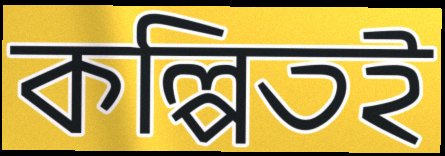
কল্পিতই